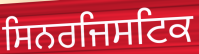
ਸਿਨਰਜਿਸਟਿਕ